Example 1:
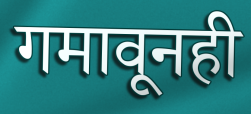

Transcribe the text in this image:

गमावूनही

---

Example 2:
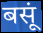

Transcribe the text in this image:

बसूं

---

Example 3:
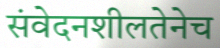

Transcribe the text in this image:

संवेदनशीलतेनेच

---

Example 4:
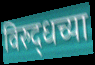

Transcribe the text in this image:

विरुद्धच्या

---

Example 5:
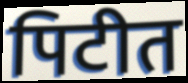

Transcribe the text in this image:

पिटीत